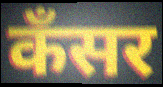
कँसर